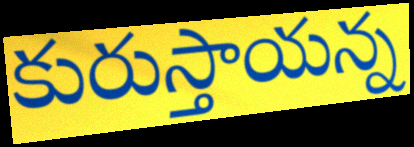
కురుస్తాయన్న